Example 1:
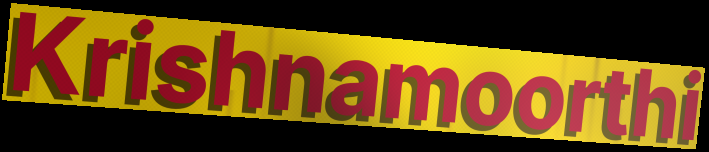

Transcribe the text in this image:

Krishnamoorthi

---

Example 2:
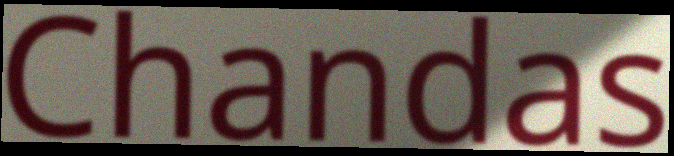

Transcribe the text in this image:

Chandas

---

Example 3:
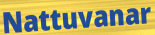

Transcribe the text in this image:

Nattuvanar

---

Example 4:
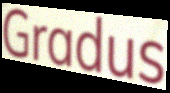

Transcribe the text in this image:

Gradus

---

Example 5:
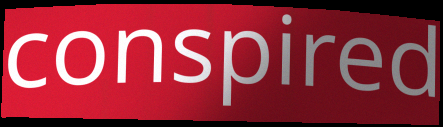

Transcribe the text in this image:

conspired